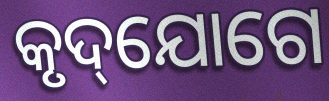
କୃଦ୍‌ଯୋଗେ